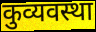
कुव्यवस्था